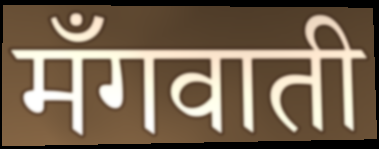
मँगवाती